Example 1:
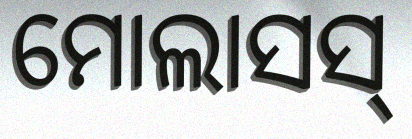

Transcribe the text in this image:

ମୋଲାସସ୍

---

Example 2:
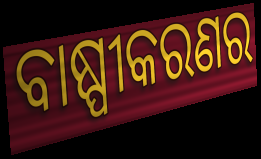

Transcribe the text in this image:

ବାଷ୍ପୀକରଣର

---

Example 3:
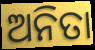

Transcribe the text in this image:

ଅନିତା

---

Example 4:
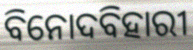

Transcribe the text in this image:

ବିନୋଦବିହାରୀ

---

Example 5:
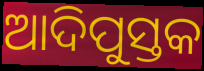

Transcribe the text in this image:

ଆଦିପୁସ୍ତକ